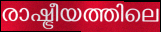
രാഷ്ട്രീയത്തിലെ